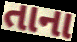
તાના